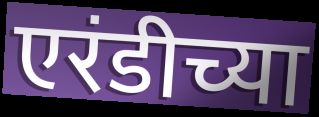
एरंडीच्या